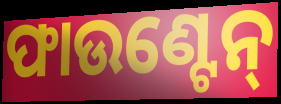
ଫାଉଣ୍ଟେନ୍